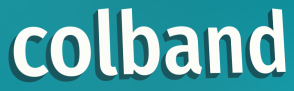
colband